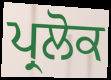
ਪ੍ਰਲੋਕ